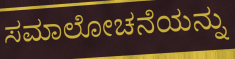
ಸಮಾಲೋಚನೆಯನ್ನು